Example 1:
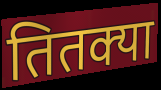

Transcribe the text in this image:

तितक्या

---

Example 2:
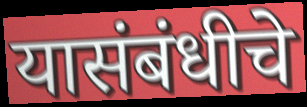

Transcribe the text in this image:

यासंबंधीचे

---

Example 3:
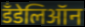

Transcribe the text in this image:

डँडेलिऑन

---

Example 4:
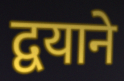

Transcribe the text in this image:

द्वयाने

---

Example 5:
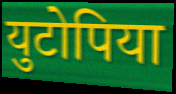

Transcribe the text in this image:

युटोपिया